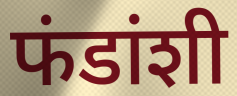
फंडांशी